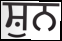
ਸ਼ੁਨ